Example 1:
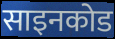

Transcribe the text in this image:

साइनकोड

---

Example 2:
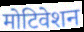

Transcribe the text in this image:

मोटिवेशन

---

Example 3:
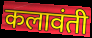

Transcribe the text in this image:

कलावंती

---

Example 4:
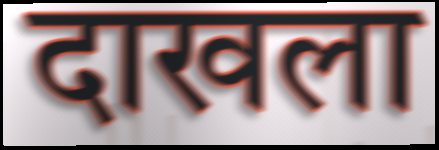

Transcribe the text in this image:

दाखला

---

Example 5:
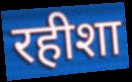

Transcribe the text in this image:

रहीशा